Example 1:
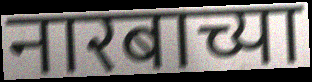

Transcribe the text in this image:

नारबाच्या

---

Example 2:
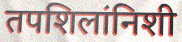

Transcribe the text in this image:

तपशिलांनिशी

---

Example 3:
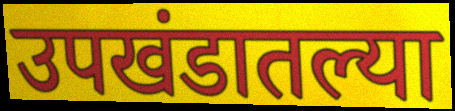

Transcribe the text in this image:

उपखंडातल्या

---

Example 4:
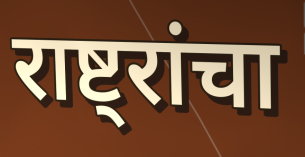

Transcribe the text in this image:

राष्ट्रांचा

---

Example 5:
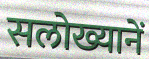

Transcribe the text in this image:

सलोख्यानें